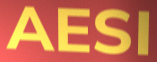
AESI